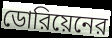
ডোরিয়েনের